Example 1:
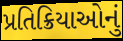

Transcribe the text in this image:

પ્રતિક્રિયાઓનું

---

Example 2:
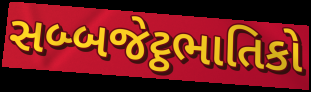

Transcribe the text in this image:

સબ્બજેટ્ઠભાતિકો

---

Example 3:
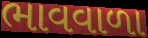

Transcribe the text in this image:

ભાવવાળા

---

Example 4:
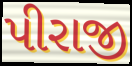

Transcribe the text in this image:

પીરાજી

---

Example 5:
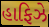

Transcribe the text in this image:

હાફિઝે